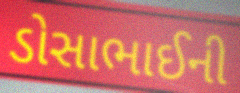
ડોસાભાઈની